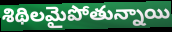
శిథిలమైపోతున్నాయి